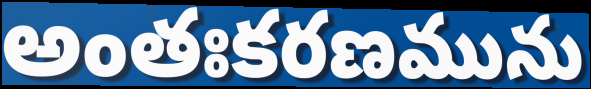
అంతఃకరణమును